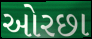
ઓરછા